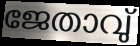
ജേതാവു്